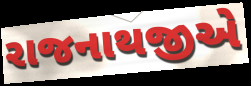
રાજનાથજીએ